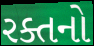
રક્તનો